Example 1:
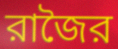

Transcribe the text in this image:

রাজৈর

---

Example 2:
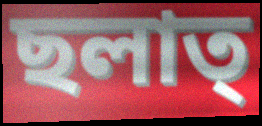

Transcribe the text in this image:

ছলাত্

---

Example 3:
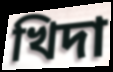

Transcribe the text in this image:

খিদা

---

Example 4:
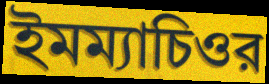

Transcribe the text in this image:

ইমম্যাচিওর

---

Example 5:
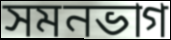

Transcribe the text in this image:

সমনভাগ